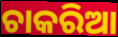
ଚାକରିଆ